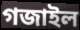
গজাইল